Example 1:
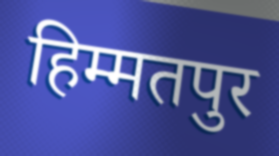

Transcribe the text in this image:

हिम्मतपुर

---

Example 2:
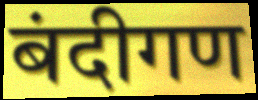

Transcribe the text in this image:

बंदीगण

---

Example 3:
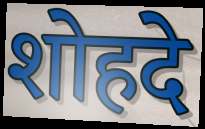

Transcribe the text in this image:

शोहदे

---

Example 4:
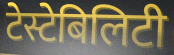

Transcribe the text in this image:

टेस्टेबिलिटी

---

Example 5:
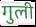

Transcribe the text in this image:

गुली